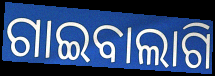
ଗାଇବାଲାଗି